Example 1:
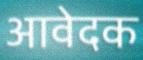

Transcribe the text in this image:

आवेदक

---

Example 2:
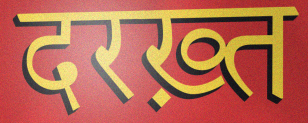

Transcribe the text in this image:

दरख़्त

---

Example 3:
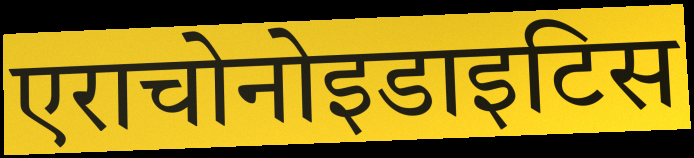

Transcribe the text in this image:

एराचोनोइडाइटिस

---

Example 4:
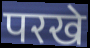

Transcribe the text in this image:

परखे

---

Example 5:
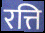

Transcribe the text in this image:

रत्ति